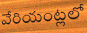
వేరియంట్లలో